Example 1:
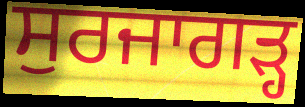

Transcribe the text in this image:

ਸੁਰਜਾਗੜ੍ਹ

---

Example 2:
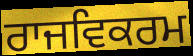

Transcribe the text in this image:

ਰਾਜਵਿਕਰਮ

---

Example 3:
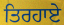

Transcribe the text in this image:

ਤਿਰਹਾਏ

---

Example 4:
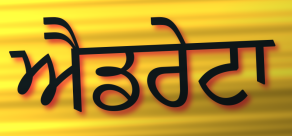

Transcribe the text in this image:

ਐਡਰੇਟਾ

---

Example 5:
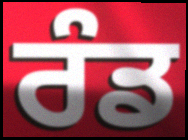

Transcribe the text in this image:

ਰੰਡ